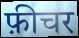
फ़ीचर